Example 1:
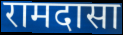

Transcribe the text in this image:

रामदासा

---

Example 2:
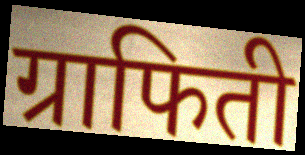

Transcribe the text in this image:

ग्राफिती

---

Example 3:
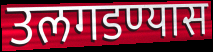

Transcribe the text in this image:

उलगडण्यास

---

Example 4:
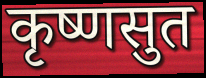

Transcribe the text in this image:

कृष्णसुत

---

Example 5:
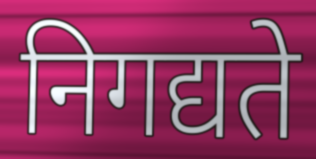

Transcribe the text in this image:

निगद्यते